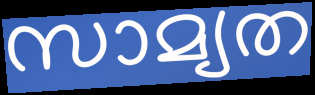
സാമ്യത